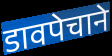
डावपेचाने